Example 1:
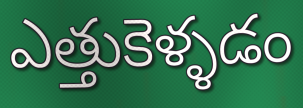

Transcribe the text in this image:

ఎత్తుకెళ్ళడం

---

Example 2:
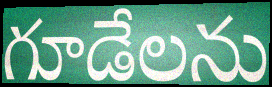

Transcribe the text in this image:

గూడేలను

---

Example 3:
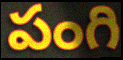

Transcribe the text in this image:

పంగి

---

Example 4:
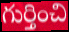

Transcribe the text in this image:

గుర్తించి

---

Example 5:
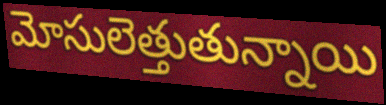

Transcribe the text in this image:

మోసులెత్తుతున్నాయి